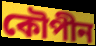
কৌপীন